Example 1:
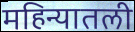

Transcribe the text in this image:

महिन्यातली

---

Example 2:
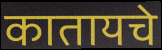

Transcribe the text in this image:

कातायचे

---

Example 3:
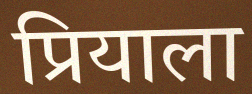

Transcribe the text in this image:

प्रियाला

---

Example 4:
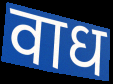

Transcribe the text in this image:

वाध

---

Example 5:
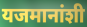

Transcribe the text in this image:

यजमानांशी